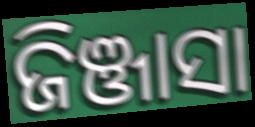
ଜିଞ୍ଜାସା